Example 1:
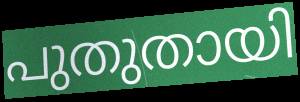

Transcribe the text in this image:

പുതുതായി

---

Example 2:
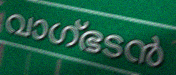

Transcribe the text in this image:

വാഗ്ഭടൻ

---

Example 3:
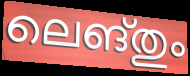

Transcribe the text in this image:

ലെങ്തും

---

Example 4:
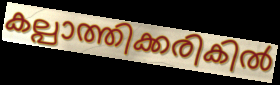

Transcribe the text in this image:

കല്പാത്തിക്കരികിൽ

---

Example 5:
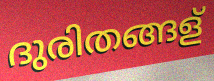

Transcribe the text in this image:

ദുരിതങ്ങള്